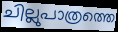
ചില്ലുപാത്രത്തെ